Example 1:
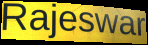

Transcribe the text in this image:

Rajeswar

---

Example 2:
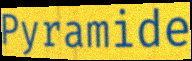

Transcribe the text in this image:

Pyramide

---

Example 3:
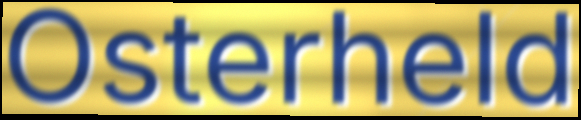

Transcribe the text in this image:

Osterheld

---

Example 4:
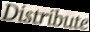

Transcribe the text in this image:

Distribute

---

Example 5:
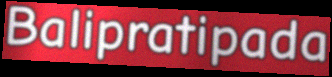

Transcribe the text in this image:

Balipratipada